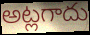
అట్లగాదు